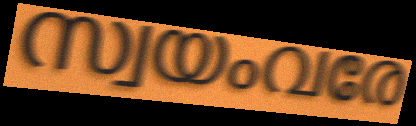
സ്വയംവരേ